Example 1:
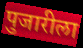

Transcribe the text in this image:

पुजारीला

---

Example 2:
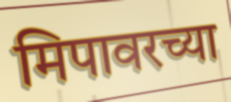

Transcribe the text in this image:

मिपावरच्या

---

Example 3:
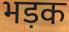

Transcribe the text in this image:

भड़क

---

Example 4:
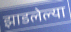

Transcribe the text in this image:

झाडलेल्या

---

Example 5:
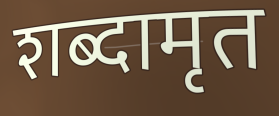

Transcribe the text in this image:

शब्दामृत